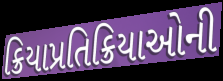
ક્રિયાપ્રતિક્રિયાઓની